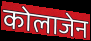
कोलाजेन